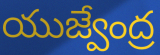
యుజ్వేంద్ర